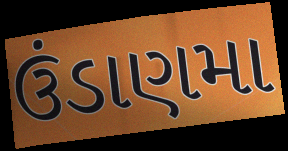
ઉંડાણમા